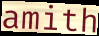
amith